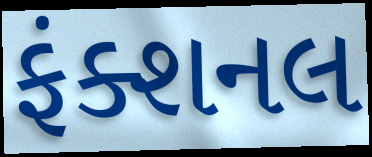
ફંક્શનલ